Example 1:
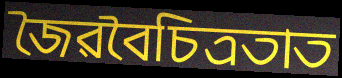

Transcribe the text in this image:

জৈৱবৈচিত্ৰতাত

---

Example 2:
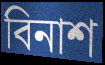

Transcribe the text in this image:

বিনাশ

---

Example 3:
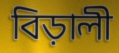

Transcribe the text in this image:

বিড়ালী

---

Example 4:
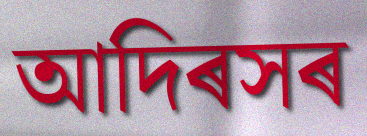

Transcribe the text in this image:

আদিৰসৰ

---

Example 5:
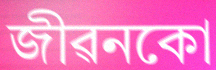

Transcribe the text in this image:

জীৱনকো